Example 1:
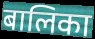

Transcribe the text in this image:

बालिका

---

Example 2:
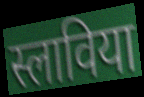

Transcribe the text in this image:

स्लाविया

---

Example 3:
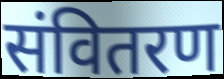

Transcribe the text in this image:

संवितरण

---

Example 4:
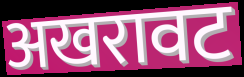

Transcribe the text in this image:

अखरावट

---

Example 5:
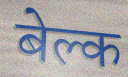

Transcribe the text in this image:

बेल्क